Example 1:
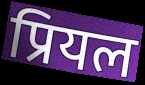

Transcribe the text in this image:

प्रियल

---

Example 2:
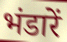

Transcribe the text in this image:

भंडारें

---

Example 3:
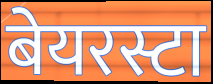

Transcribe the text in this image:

बेयरस्टा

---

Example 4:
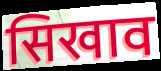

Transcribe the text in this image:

सिखाव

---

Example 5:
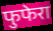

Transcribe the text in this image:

फुफेरा